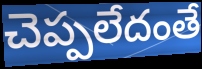
చెప్పలేదంతే